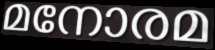
മനോരമ